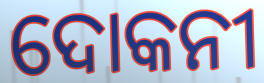
ଦୋକନୀ